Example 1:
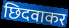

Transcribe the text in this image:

छिदवाकर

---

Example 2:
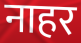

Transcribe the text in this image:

नाहर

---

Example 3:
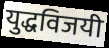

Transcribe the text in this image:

युद्धविजयी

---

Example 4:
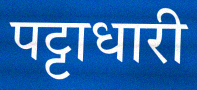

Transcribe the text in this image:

पट्टाधारी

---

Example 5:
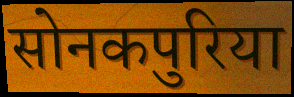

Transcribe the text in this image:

सोनकपुरिया